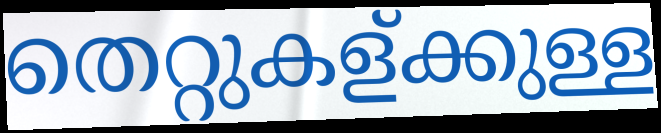
തെറ്റുകള്ക്കുള്ള